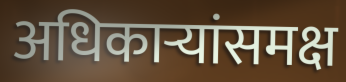
अधिकाऱ्यांसमक्ष